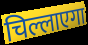
चिल्लाएगा